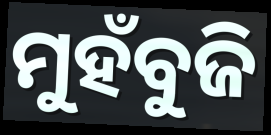
ମୁହଁବୁଜି